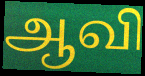
ஆவி